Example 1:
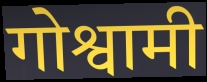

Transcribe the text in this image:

गोश्वामी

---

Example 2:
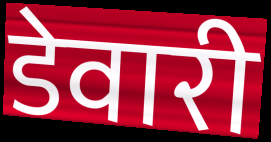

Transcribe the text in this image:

डेवारी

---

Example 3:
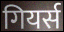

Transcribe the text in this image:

गियर्स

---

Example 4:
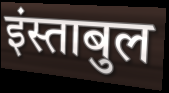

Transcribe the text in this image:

इंस्ताबुल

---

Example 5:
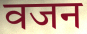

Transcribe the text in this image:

वजन